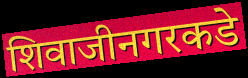
शिवाजीनगरकडे